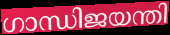
ഗാന്ധിജയന്തി